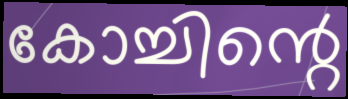
കോച്ചിന്റെ